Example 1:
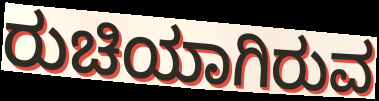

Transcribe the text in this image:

ರುಚಿಯಾಗಿರುವ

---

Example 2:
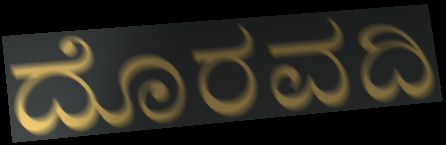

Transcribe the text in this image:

ದೊರವದಿ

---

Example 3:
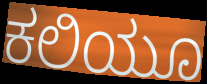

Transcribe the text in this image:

ಕಲಿಯೂ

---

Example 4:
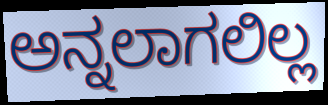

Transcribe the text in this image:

ಅನ್ನಲಾಗಲಿಲ್ಲ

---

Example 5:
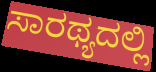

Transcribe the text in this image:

ಸಾರಥ್ಯದಲ್ಲಿ